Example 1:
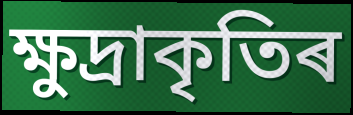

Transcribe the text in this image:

ক্ষুদ্ৰাকৃতিৰ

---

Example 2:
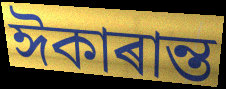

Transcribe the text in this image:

ঈকাৰান্ত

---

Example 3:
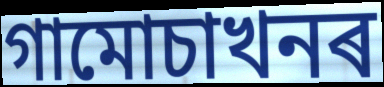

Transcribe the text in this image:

গামোচাখনৰ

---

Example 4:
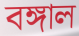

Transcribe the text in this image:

বঙ্গাল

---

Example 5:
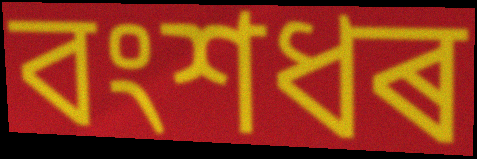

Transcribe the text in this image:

বংশধৰ